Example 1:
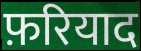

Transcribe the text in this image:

फ़रियाद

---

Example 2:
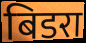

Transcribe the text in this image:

बिडरा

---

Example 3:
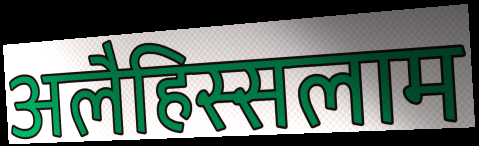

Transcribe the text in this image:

अलैहिस्सलाम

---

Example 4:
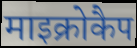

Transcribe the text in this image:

माइक्रोकैप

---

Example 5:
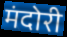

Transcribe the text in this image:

मंदोरी